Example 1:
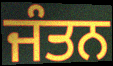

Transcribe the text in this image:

ਜੰਤਨ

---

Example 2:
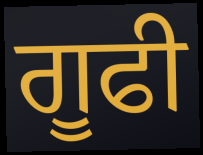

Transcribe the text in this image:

ਗੂਫੀ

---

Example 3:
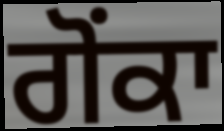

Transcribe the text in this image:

ਗੋਂਕਾ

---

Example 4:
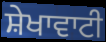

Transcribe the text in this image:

ਸ਼ੇਖਾਵਾਟੀ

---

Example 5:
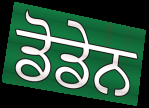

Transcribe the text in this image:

ਡੋਡੇਨ